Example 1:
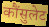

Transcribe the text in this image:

कौंसुलेट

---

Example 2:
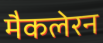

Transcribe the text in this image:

मैकलेरन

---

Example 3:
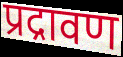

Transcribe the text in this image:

प्रद्रावण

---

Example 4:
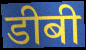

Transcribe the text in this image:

डीबी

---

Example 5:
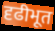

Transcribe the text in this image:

दृढीभूत